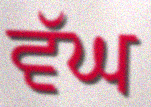
ਵੱਘ